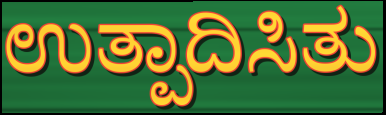
ಉತ್ಪಾದಿಸಿತು